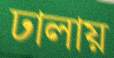
ঢালায়